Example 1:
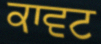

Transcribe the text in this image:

ਕਾਵਟ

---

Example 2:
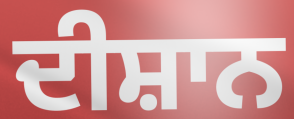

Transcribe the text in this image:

ਦੀਸ਼ਾਨ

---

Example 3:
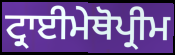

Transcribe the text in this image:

ਟ੍ਰਾਈਮੇਥੋਪ੍ਰੀਮ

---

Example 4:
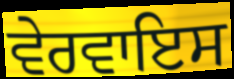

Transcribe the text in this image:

ਵੇਰਵਾਇਸ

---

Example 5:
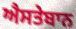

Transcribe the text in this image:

ਐਸਤੇਬਾਨ